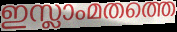
ഇസ്ലാംമതത്തെ